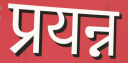
प्रयन्न